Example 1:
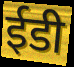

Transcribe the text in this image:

ईडी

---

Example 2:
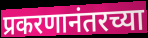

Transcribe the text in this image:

प्रकरणानंतरच्या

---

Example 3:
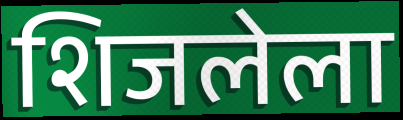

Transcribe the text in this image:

शिजलेला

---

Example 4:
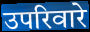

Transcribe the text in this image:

उपरिवारे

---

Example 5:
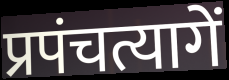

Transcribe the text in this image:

प्रपंचत्यागें